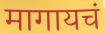
मागायचं